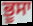
ਭੂਸਾ